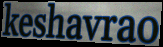
keshavrao